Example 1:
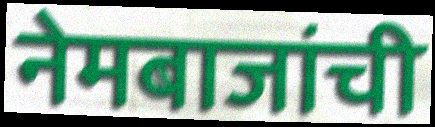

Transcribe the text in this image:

नेमबाजांची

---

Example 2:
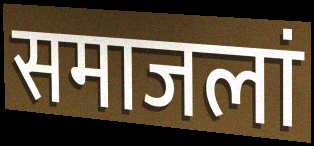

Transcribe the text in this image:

समाजलां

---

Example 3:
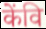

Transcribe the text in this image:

केंवि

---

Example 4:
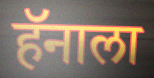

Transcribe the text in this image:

हॅनाला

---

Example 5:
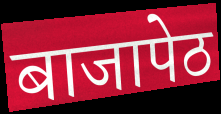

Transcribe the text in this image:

बाजापेठ